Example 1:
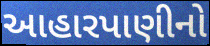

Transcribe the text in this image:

આહારપાણીનો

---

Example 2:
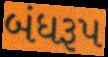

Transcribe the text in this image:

બંધરૂપ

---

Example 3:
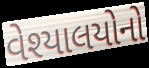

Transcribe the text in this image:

વેશ્યાલયોનો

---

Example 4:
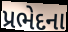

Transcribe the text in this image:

પ્રભેદના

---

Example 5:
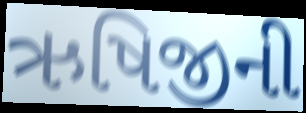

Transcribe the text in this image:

ઋષિજીની